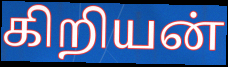
கிறியன்